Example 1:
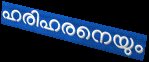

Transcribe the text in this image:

ഹരിഹരനെയും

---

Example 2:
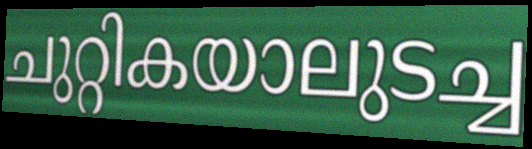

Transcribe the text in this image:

ചുറ്റികയാലുടച്ച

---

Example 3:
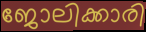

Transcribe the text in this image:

ജോലിക്കാരി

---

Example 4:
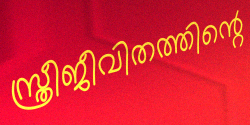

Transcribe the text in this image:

സ്ത്രീജീവിതത്തിന്റെ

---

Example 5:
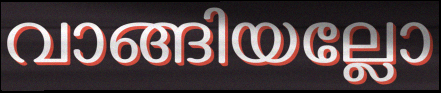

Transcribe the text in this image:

വാങ്ങിയല്ലോ